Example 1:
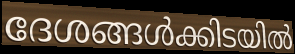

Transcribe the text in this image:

ദേശങ്ങൾക്കിടയിൽ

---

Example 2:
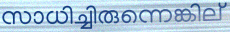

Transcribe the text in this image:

സാധിച്ചിരുന്നെങ്കില്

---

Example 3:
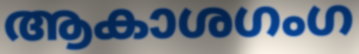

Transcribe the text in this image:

ആകാശഗംഗ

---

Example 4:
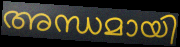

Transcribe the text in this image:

അന്ധമായി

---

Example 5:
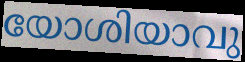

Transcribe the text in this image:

യോശിയാവു